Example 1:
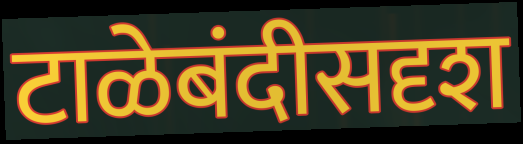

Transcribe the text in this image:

टाळेबंदीसदृश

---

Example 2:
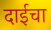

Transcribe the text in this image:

दाईचा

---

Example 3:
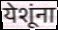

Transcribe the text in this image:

येशूंना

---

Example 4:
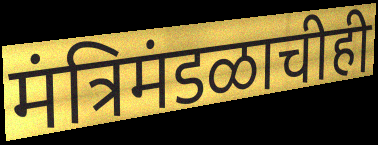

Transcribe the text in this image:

मंत्रिमंडळाचीही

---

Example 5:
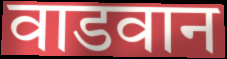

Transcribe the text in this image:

वाडवान